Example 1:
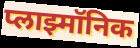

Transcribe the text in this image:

प्लाझ्मॉनिक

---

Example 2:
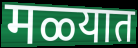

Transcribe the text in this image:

मळ्यात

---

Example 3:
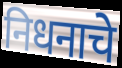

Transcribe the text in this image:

निधनाचे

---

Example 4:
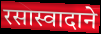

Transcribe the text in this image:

रसास्वादाने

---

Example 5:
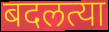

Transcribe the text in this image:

बदलत्या